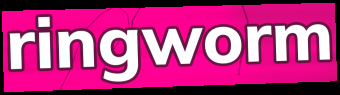
ringworm